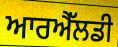
ਆਰਐੱਲਡੀ